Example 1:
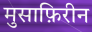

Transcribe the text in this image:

मुसाफ़िरीन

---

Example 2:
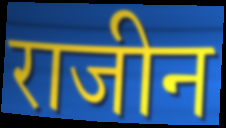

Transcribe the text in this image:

राजीन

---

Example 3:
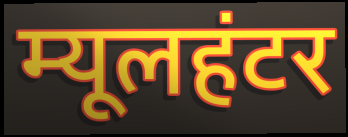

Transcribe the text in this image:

म्यूलहंटर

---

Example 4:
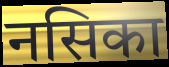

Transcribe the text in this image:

नसिका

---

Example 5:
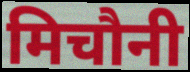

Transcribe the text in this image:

मिचौनी